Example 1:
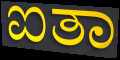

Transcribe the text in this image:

ಐತಾ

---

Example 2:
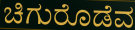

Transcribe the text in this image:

ಚಿಗುರೊಡೆವ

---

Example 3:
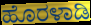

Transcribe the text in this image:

ಹೊರಳಾಡಿ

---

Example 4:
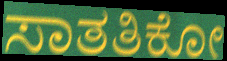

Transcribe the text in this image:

ಸಾತತಿಕೋ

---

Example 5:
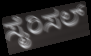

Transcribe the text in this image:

ಸೈರಿಸಲ್